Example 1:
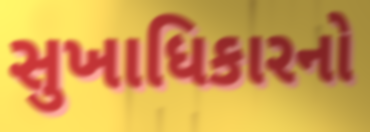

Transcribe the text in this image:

સુખાધિકારનો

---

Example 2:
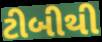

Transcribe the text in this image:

ટીબીથી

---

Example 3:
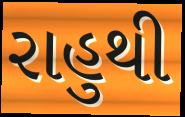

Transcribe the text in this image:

રાહુથી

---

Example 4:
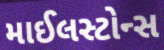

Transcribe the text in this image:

માઈલસ્ટોન્સ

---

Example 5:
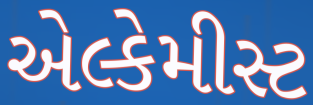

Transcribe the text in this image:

એલ્કેમીસ્ટ